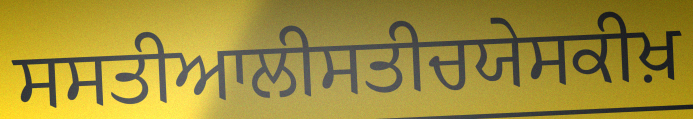
ਸਸਤੀਆਲੀਸਤੀਚਯੇਸਕੀਖ਼